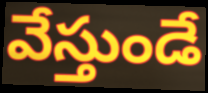
వేస్తుండే